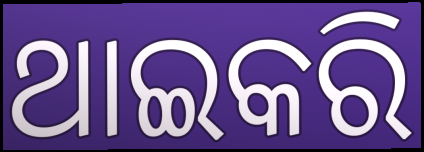
ଥାଇକରି